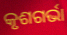
କୃଶଗର୍ଭା